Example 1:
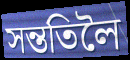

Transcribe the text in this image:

সন্ততিলৈ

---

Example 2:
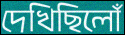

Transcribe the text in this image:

দেখিছিলোঁ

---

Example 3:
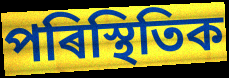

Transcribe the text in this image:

পৰিস্থিতিক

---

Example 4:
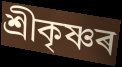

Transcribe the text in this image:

শ্ৰীকৃষ্ণৰ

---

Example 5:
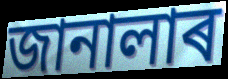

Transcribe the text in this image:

জানালাৰ